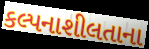
કલ્પનાશીલતાના